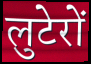
लुटेरों